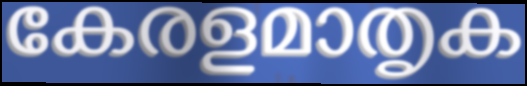
കേരളമാതൃക